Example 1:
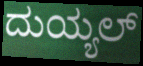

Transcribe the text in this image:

ದುಯ್ಯಲ್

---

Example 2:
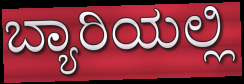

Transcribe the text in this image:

ಬ್ಯಾರಿಯಲ್ಲಿ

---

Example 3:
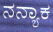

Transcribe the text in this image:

ನನ್ಯಾಕ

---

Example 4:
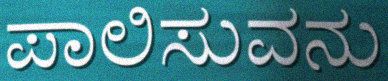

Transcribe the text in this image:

ಪಾಲಿಸುವನು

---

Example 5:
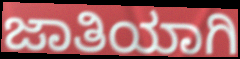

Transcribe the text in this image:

ಜಾತಿಯಾಗಿ